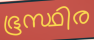
ഭൂസ്ഥിര